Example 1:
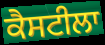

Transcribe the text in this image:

ਕੈਸਟੀਲਾ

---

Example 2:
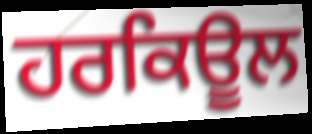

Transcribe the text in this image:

ਹਰਕਿਊਲ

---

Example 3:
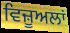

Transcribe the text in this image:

ਵਿਜ਼ੂਅਲਾਂ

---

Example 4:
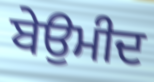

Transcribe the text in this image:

ਬੇਉਮੀਦ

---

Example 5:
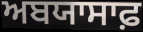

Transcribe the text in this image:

ਅਬਯਾਸਾਫ਼